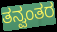
ತನ್ವಂತರ